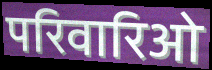
परिवारिओ